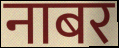
नाबर